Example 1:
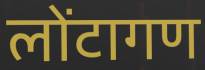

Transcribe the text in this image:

लोंटागण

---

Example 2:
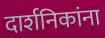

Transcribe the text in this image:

दार्शनिकांना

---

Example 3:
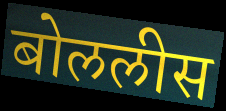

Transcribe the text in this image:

बोललीस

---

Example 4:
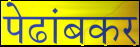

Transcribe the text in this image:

पेढांबकर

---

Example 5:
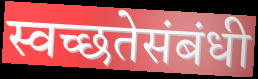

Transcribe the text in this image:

स्वच्छतेसंबंधी